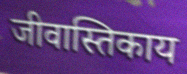
जीवास्तिकाय